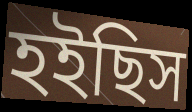
হইছিস